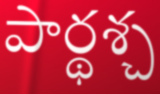
పార్థశ్చ